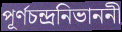
পূর্ণচন্দ্রনিভাননী